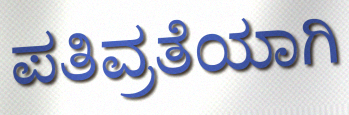
ಪತಿವ್ರತೆಯಾಗಿ